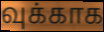
வுக்காக